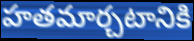
హతమార్చటానికి